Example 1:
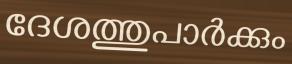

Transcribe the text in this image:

ദേശത്തുപാർക്കും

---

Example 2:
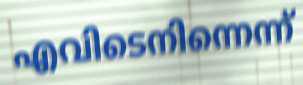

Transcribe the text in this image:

എവിടെനിന്നെന്ന്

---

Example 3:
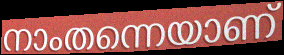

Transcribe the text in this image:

നാംതന്നെയാണ്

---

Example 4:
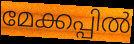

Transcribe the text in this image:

മേക്കപ്പിൽ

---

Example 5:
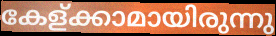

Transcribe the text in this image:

കേള്ക്കാമായിരുന്നു